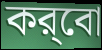
কর্‌বো